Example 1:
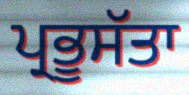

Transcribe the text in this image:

ਪ੍ਰਭੂਸੱਤਾ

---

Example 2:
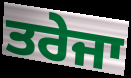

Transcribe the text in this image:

ਤਰੇਜਾ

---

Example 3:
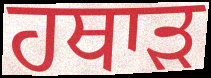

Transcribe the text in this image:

ਹਥਾੜ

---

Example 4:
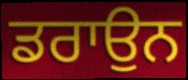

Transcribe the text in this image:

ਡਰਾਉਨ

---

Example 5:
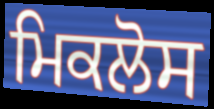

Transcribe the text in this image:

ਮਿਕਲੋਸ